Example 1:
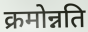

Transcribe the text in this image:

क्रमोन्नति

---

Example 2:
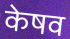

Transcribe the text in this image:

केषव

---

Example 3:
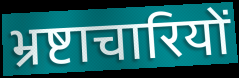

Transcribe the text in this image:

भ्रष्टाचारियों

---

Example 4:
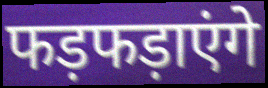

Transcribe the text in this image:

फड़फड़ाएंगे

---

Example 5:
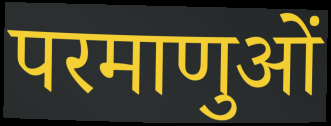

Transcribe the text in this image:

परमाणुओं